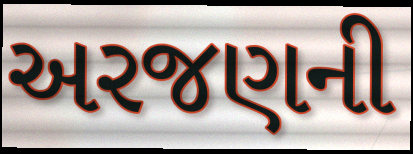
અરજણની